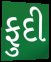
ફુદી